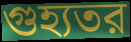
গুহ্যতর